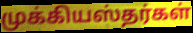
முக்கியஸ்தர்கள்